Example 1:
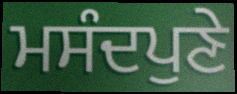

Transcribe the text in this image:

ਮਸੰਦਪੁਣੇ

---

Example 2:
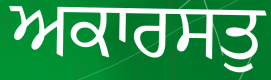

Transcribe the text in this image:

ਅਕਾਰਸਤੁ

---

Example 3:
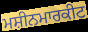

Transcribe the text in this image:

ਮਸ਼ੀਨਮਾਰਕੀਟ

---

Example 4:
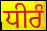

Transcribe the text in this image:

ਧੀਰੰ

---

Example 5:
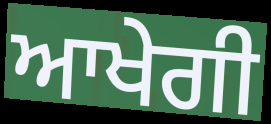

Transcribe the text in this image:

ਆਖੇਗੀ